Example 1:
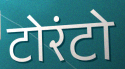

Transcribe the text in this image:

टोरंटो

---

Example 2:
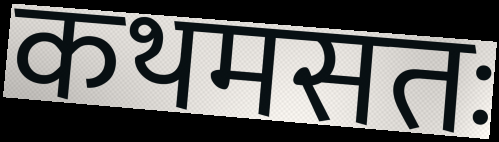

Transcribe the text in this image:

कथमसतः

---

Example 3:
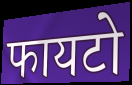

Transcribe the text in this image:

फायटो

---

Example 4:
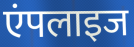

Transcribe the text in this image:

एंपलाइज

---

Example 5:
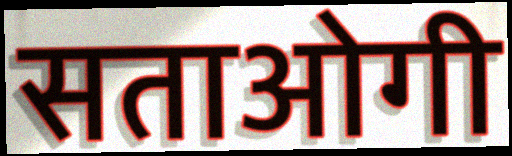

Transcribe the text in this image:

सताओगी